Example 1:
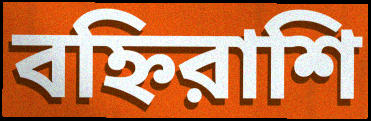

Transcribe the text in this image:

বহ্নিরাশি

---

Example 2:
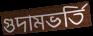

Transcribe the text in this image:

গুদামভর্তি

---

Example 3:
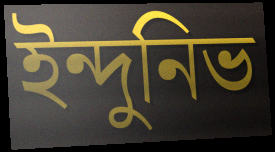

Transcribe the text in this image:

ইন্দুনিভ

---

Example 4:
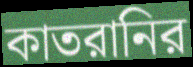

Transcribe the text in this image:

কাতরানির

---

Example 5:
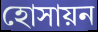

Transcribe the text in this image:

হোসায়ন